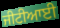
ਜੀਟੀਆਈ